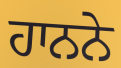
ਹਾਨਨੇ